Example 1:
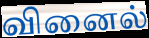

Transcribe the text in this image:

வினைல்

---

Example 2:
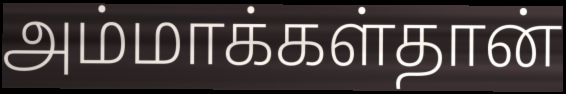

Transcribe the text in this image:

அம்மாக்கள்தான்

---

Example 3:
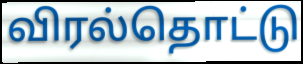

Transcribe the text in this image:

விரல்தொட்டு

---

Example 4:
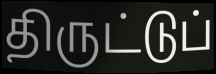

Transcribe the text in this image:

திருட்டுப்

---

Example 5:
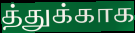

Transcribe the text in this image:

த்துக்காக